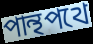
পান্থপথে